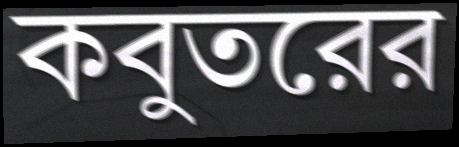
কবুতরের